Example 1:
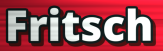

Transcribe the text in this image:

Fritsch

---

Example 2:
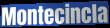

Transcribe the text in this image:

Montecincla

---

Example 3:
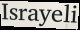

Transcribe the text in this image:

Israyeli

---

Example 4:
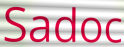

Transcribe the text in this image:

Sadoc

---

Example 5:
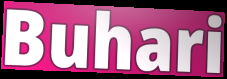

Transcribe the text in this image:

Buhari